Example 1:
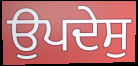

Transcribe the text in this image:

ਉਪਦੇਸੁ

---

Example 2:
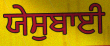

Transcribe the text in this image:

ਯੇਸੁਬਾਈ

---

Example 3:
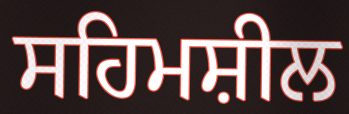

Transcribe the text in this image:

ਸਹਿਮਸ਼ੀਲ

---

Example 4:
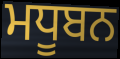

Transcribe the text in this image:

ਮਧੂਬਨ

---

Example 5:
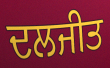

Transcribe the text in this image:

ਦਲਜੀਤ